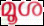
മൂശ